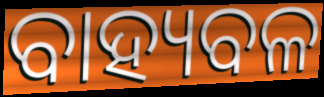
ବାହ୍ୟବଳ